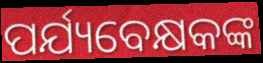
ପର୍ଯ୍ୟବେକ୍ଷକଙ୍କ